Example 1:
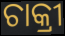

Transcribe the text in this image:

ଚାକ୍ରୀ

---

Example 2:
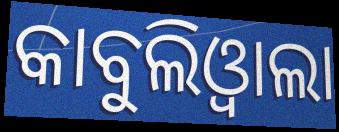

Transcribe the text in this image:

କାବୁଲିଓ୍ୱାଲା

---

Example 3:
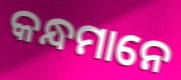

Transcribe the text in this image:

କନ୍ଧମାନେ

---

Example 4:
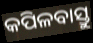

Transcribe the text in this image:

କପିଳବାସ୍ତୁ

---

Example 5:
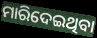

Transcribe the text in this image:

ମାରିଦେଇଥିବା